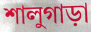
শালুগাড়া